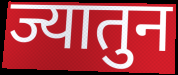
ज्यातुन